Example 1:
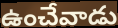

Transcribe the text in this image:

ఉంచేవాడు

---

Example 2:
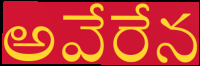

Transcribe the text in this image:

అవేరేన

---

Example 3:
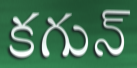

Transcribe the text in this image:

కగున్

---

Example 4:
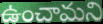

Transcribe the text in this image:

ఉంచామని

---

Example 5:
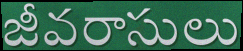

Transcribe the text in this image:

జీవరాసులు